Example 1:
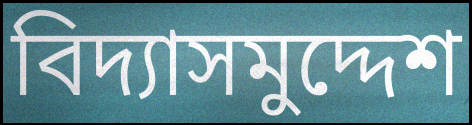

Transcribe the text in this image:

বিদ্যাসমুদ্দেশ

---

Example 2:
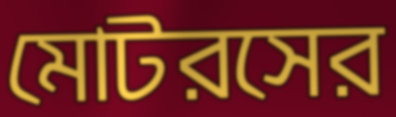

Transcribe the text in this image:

মোটরসের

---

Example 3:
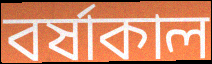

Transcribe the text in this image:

বর্ষাকাল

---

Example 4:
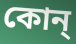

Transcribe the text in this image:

কোন্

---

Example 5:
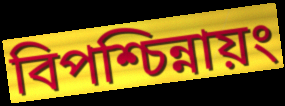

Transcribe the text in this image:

বিপশ্চিন্নায়ং